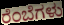
ರೆಂಬೆಗಳು